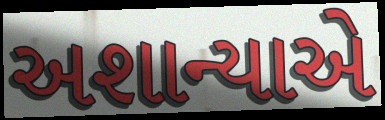
અશાન્યાએ